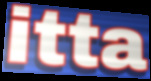
itta